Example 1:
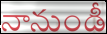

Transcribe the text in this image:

నానుండీ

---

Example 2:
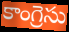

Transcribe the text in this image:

కాంగ్రెసు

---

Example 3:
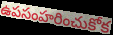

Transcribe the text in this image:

ఉపసంహరించుకోక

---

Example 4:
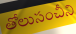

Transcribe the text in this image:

తోలుసంచీని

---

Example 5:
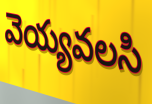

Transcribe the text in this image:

వెయ్యవలసి